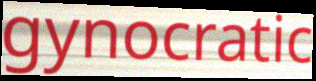
gynocratic